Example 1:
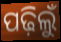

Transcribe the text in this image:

ପଢ଼ିଲୁଁ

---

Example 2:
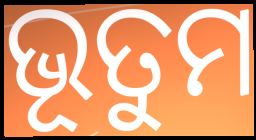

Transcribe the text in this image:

ଭୂତୁମ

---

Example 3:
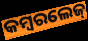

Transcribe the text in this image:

କମ୍ବରଲେଜ୍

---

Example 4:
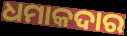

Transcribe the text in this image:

ଧମାକଦାର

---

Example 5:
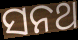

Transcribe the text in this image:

ସନଥ